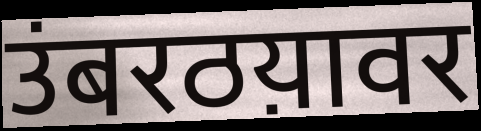
उंबरठय़ावर